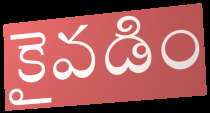
కైవడిం